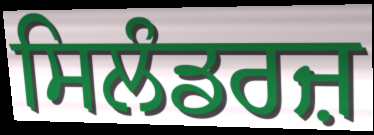
ਸਿਲੰਡਰਜ਼